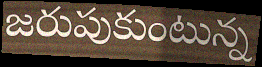
జరుపుకుంటున్న